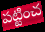
పట్టించ